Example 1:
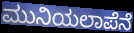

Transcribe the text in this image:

ಮುನಿಯಲಾಪೆನೆ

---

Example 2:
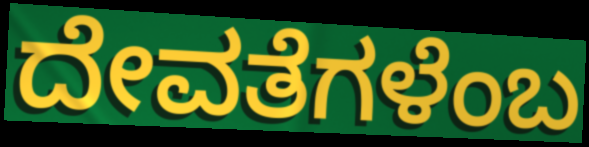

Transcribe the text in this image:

ದೇವತೆಗಳೆಂಬ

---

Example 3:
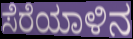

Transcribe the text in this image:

ಸೆರೆಯಾಳಿನ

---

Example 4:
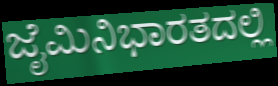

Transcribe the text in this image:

ಜೈಮಿನಿಭಾರತದಲ್ಲಿ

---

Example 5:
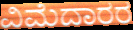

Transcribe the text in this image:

ವಿಮೆದಾರರ